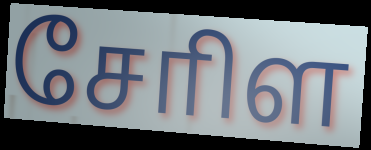
சேரிள